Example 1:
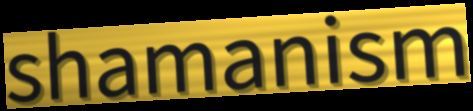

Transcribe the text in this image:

shamanism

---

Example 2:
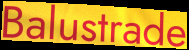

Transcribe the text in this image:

Balustrade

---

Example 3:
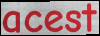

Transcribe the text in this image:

acest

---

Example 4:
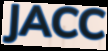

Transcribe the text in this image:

JACC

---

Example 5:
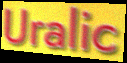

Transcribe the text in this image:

Uralic